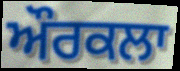
ਔਰਕਲਾ